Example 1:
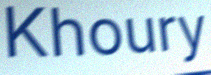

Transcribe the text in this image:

Khoury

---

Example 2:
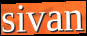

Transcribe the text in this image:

sivan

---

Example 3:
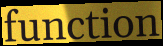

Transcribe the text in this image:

function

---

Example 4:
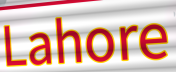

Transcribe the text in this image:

Lahore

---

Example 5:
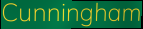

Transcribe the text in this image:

Cunningham